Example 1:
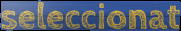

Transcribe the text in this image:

seleccionat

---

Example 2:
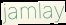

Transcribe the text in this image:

jamlay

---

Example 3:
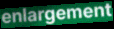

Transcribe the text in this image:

enlargement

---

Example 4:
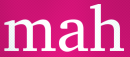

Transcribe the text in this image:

mah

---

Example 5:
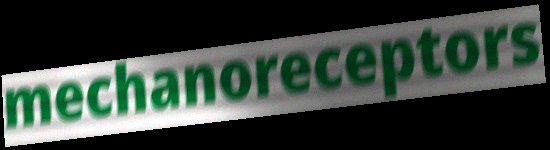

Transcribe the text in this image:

mechanoreceptors